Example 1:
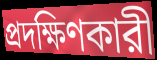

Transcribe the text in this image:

প্রদক্ষিণকারী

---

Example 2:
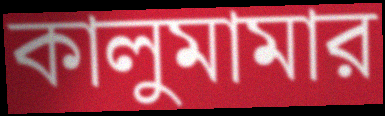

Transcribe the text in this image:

কালুমামার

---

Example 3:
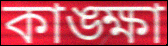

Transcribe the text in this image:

কাঙ্ক্ষা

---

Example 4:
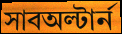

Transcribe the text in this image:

সাবঅল্টার্ন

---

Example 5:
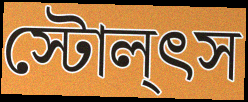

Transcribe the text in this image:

স্টোল্ৎস